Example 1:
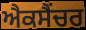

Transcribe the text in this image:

ਐਕਸੈਂਚਰ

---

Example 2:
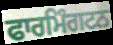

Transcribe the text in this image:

ਫਾਰਮਿੰਗਟਨ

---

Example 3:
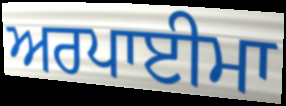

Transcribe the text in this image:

ਅਰਪਾਈਮਾ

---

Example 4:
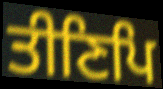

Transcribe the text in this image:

ਤੀਣਿਪਿ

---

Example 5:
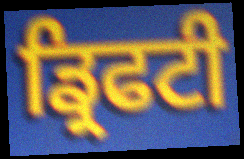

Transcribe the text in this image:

ਡ੍ਰਿਫਟੀ